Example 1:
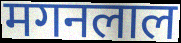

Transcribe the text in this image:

मगनलाल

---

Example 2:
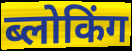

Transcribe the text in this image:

ब्लोकिंग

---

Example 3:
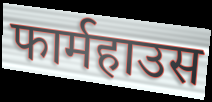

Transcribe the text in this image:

फार्महाउस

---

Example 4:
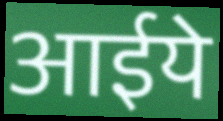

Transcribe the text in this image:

आईये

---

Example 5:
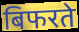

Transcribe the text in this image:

बिफरते